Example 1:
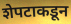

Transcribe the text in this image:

शेपटाकडून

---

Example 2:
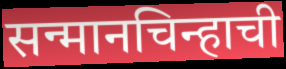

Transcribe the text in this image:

सन्मानचिन्हाची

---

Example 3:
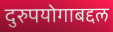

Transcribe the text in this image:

दुरुपयोगाबद्दल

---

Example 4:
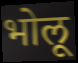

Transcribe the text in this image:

भोलू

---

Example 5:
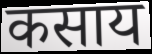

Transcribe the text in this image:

कसाय